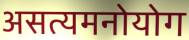
असत्यमनोयोग